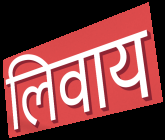
लिवाय